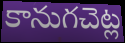
కానుగచెట్ల